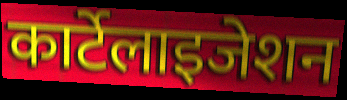
कार्टेलाइजेशन